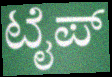
ಟೈಪ್